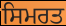
ਸਿਮਰਤ